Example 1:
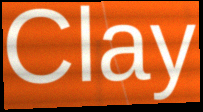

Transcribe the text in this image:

Clay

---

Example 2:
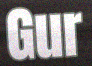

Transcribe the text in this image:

Gur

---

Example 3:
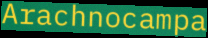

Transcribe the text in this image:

Arachnocampa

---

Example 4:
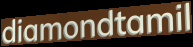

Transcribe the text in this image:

diamondtamil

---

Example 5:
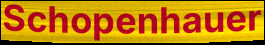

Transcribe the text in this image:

Schopenhauer